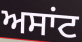
ਅਸਾਂਟ